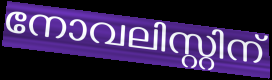
നോവലിസ്റ്റിന്